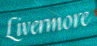
Livermore